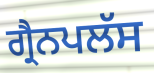
ਗ੍ਰੈਨਪਲੱਸ